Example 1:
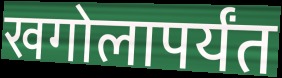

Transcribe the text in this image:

खगोलापर्यंत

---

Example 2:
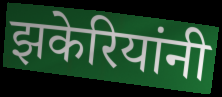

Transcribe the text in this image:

झकेरियांनी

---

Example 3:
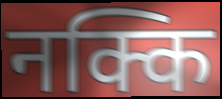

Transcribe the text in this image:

नक्कि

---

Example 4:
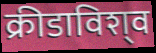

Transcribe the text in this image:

क्रीडाविश्व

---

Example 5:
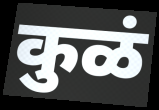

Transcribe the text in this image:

कुळं